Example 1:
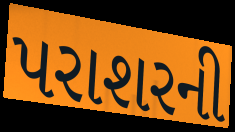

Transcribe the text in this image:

પરાશરની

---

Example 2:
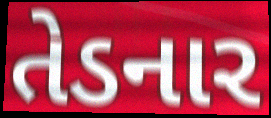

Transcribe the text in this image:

તેડનાર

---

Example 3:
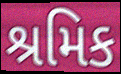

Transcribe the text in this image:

શ્રમિક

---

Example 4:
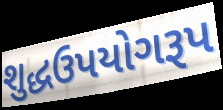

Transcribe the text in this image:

શુદ્ધઉપયોગરૂપ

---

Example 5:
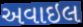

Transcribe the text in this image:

અવાઇલ